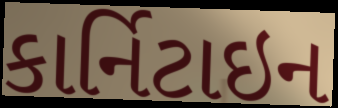
કાર્નિટાઇન